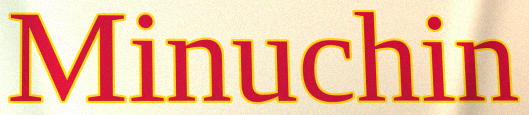
Minuchin